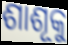
ଶାଶୂକୁ